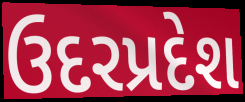
ઉદરપ્રદેશ